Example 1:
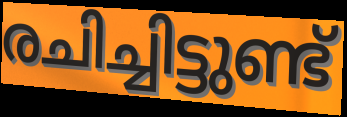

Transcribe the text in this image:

രചിച്ചിട്ടുണ്ട്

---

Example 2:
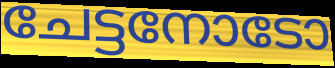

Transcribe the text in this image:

ചേട്ടനോടോ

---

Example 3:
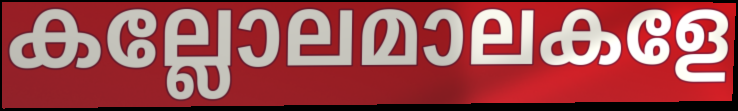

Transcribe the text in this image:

കല്ലോലമാലകളേ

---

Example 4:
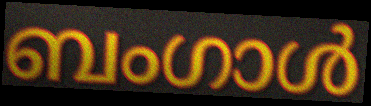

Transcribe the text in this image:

ബംഗാൾ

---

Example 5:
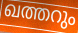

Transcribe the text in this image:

ഖത്തറും